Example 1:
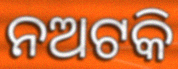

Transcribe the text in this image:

ନଅଟକି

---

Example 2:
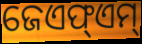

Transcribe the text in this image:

ଜେଏଫ୍ଏମ୍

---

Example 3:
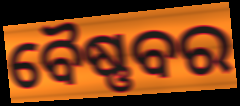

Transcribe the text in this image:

ବୈଷ୍ଣବର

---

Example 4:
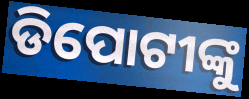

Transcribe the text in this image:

ଡିପୋଟୀଙ୍କୁ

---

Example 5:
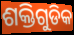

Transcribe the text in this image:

ଶକ୍ତିଗୁଡିକ